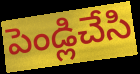
పెండ్లిచేసి